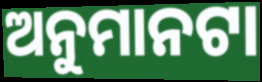
ଅନୁମାନଟା